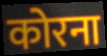
कोरना